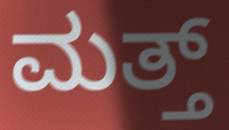
ಮತ್ತ್